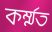
কৰ্ম্মত